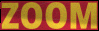
ZOOM